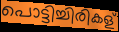
പൊട്ടിച്ചിരികള്